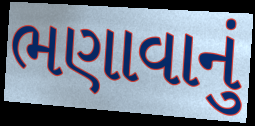
ભણાવાનું